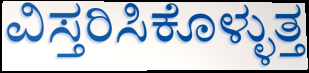
ವಿಸ್ತರಿಸಿಕೊಳ್ಳುತ್ತ